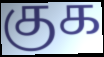
குக